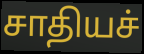
சாதியச்